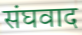
संघवाद